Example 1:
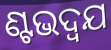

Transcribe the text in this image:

ଣ୍ଟଭଦ୍ଵଯ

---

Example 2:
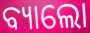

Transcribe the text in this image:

ବ୍ୟାଲୋ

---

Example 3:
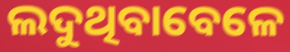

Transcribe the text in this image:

ଲଦୁଥିବାବେଳେ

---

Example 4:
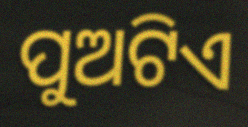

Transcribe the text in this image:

ପୁଅଟିଏ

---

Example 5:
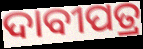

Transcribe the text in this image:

ଦାବୀପତ୍ର